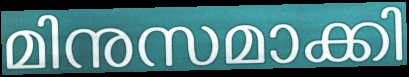
മിനുസമാക്കി